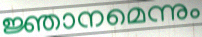
ജ്ഞാനമെന്നും